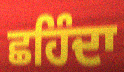
ਛਹਿੰਦਾ